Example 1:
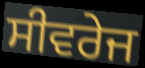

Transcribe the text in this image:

ਸੀਵਰੇਜ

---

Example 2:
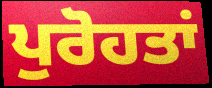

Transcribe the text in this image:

ਪੁਰੋਹਤਾਂ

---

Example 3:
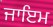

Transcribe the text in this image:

ਜਾਇਮ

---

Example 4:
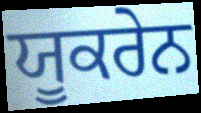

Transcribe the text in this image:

ਯੂਕਰੇਨ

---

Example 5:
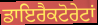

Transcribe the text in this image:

ਡਾਇਰੈਕਟੋਰੇਟਾਂ